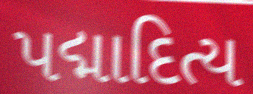
પદ્માદિત્ય